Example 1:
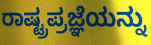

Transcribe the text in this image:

ರಾಷ್ಟ್ರಪ್ರಜ್ಞೆಯನ್ನು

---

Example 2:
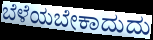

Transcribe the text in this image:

ಬೆಳೆಯಬೇಕಾದುದು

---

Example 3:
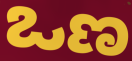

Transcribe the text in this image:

ಒಣ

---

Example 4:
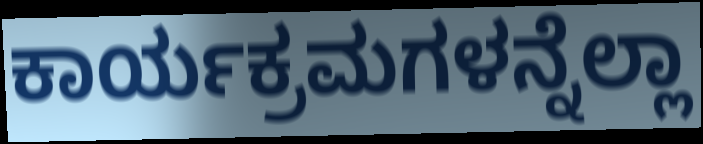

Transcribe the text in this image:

ಕಾರ್ಯಕ್ರಮಗಳನ್ನೆಲ್ಲಾ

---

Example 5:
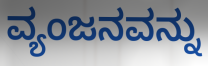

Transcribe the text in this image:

ವ್ಯಂಜನವನ್ನು